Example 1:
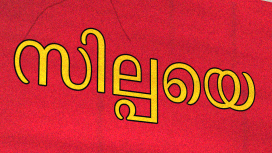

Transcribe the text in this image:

സില്പയെ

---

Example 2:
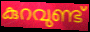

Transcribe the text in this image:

കുറവുണ്ട്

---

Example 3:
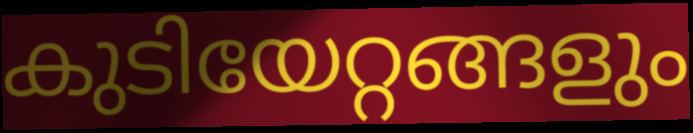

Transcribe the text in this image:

കുടിയേറ്റങ്ങളും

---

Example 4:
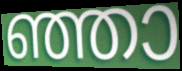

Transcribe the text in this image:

ഞ്ഞാ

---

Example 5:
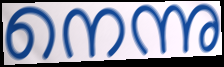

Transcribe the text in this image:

നെന്നു